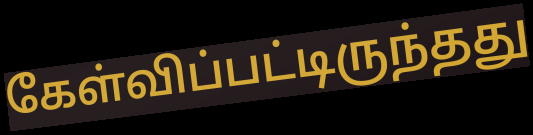
கேள்விப்பட்டிருந்தது